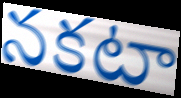
నకటా